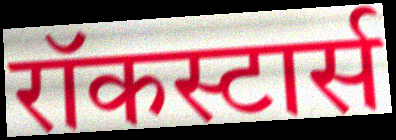
रॉकस्टार्स